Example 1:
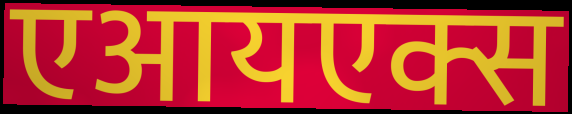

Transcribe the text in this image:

एआयएक्स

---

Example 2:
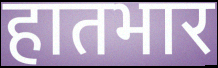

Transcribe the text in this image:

हातभार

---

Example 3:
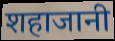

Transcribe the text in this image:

शहाजानी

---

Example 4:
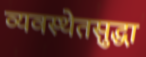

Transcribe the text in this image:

व्यवस्थेतसुद्धा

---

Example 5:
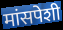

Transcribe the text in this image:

मांसपेशी